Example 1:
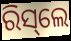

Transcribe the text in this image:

ରିସ୍‌ଲେ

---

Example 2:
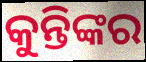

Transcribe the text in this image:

କୁନ୍ତିଙ୍କର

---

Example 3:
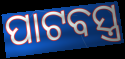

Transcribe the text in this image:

ପାଟବସ୍ତ୍ର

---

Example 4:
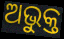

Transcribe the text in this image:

ଅଭୁକ୍ତ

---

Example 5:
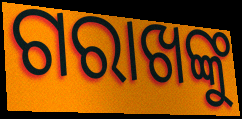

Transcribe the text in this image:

ଗରାଖଙ୍କୁ